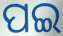
ପଇ